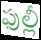
ఫుల్లీ